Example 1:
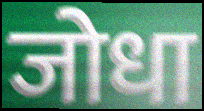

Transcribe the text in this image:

जोधा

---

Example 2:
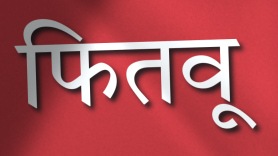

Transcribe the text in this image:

फितवू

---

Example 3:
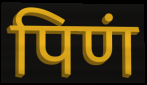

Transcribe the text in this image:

पिणं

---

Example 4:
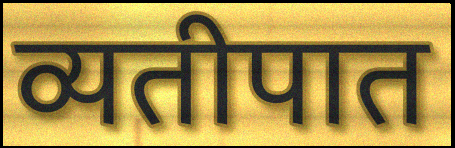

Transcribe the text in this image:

व्यतीपात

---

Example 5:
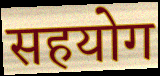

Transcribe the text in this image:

सहयोग